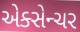
એક્સેન્ચર